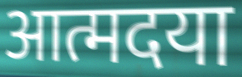
आत्मदया